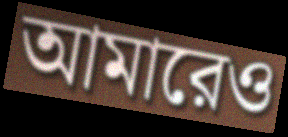
আমারেও